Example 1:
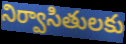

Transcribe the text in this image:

నిర్వాసితులకు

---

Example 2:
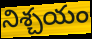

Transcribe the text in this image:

నిశ్చయం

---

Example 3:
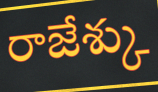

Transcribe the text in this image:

రాజేశ్కు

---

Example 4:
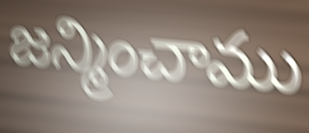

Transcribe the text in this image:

జన్మించాము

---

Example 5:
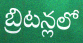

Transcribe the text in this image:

బ్రిటన్లలో